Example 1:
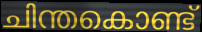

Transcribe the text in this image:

ചിന്തകൊണ്ട്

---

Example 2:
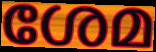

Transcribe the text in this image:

ശേമ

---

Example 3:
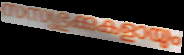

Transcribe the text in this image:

സസ്യഭുക്കുകളായും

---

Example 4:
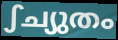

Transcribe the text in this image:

ഽച്യുതം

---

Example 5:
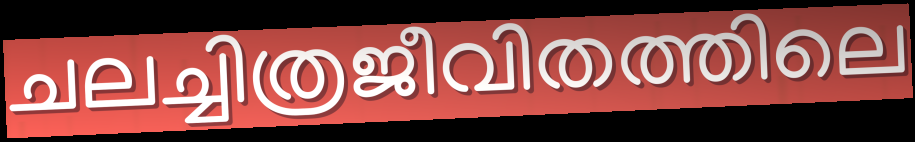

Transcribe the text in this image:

ചലച്ചിത്രജീവിതത്തിലെ